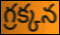
గ్రక్కన